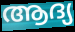
ആദ്യ